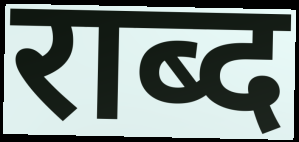
राब्द